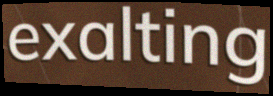
exalting